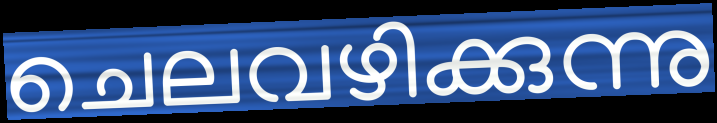
ചെലവഴിക്കുന്നു